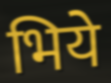
भिये